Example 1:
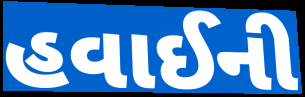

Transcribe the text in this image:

હવાઈની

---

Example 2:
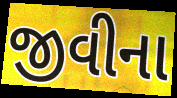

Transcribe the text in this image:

જીવીના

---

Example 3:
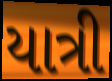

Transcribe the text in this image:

યાત્રી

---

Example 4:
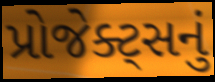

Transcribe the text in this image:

પ્રોજેક્ટ્સનું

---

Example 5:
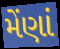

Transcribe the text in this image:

મેંણાં